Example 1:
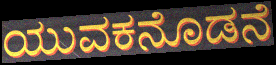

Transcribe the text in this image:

ಯುವಕನೊಡನೆ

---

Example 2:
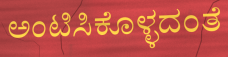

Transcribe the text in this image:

ಅಂಟಿಸಿಕೊಳ್ಳದಂತೆ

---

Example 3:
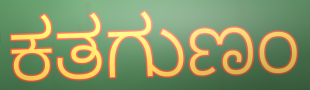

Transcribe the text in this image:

ಕತಗುಣಂ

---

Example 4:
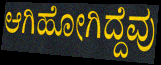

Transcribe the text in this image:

ಆಗಿಹೋಗಿದ್ದೆವು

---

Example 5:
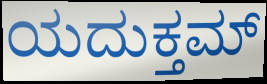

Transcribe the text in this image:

ಯದುಕ್ತಮ್